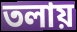
তলায়